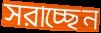
সরাচ্ছেন